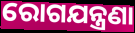
ରୋଗଯନ୍ତ୍ରଣା